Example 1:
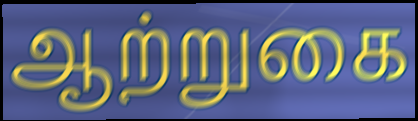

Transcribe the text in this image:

ஆற்றுகை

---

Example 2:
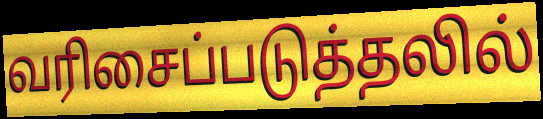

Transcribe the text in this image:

வரிசைப்படுத்தலில்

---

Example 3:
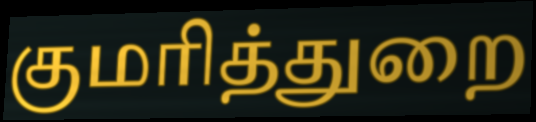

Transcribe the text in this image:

குமரித்துறை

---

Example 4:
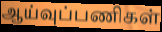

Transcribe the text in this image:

ஆய்வுப்பணிகள்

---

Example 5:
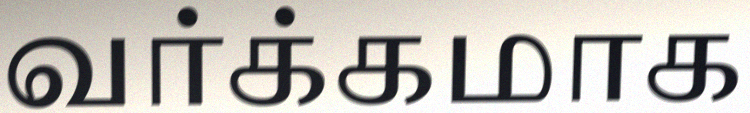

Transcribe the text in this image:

வர்க்கமாக